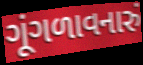
ગૂંગળાવનારું